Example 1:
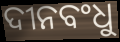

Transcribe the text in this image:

ଦୀନବଂଧୁ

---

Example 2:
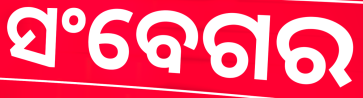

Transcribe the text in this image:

ସଂବେଗର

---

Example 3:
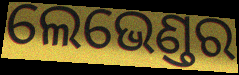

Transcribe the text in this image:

ଲେଭେଣ୍ଡର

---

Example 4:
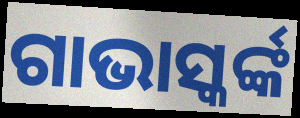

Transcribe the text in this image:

ଗାଭାସ୍କର୍ଙ୍କ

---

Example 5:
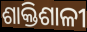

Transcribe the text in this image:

ଶାକ୍ତିଶାଳୀ